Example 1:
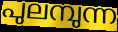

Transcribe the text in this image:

പുലമ്പുന്ന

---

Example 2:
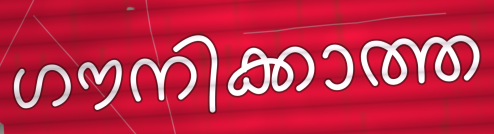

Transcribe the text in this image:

ഗൗനിക്കാത്ത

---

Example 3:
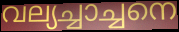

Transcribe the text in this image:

വല്യച്ചാച്ചനെ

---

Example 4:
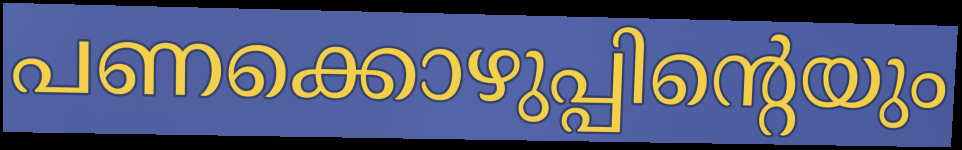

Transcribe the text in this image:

പണക്കൊഴുപ്പിന്റെയും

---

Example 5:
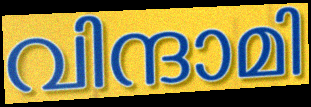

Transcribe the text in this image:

വിന്ദാമി